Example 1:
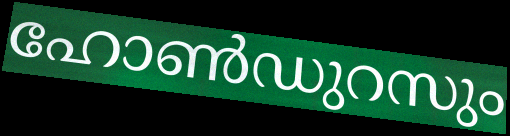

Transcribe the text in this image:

ഹോൺഡുറസും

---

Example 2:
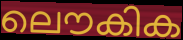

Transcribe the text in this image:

ലൌകിക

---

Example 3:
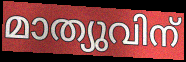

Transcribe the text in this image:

മാത്യുവിന്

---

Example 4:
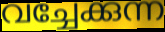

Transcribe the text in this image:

വച്ചേക്കുന്ന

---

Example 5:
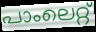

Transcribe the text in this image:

പാംലെറ്റ്